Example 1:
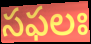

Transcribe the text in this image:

సఫలః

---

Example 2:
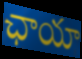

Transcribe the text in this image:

ఛాయా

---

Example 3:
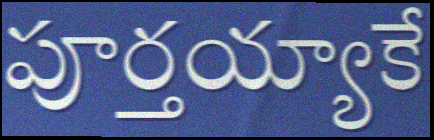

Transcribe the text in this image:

పూర్తయ్యాకే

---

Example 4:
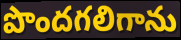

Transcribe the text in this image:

పొందగలిగాను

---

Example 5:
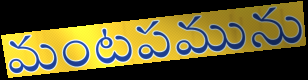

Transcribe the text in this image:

మంటపమును